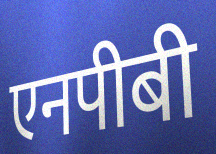
एनपीबी